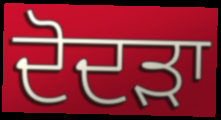
ਦੋਦੜਾ